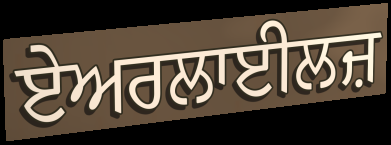
ਏਅਰਲਾਈਲਜ਼